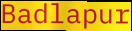
Badlapur